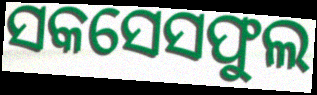
ସକସେସଫୁଲ